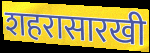
शहरासारखी